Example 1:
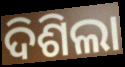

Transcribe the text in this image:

ଦିଶିଲା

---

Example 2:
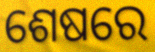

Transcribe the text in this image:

ଶେଷରେ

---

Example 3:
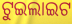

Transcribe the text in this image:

ଟୁଇଲାଇଟ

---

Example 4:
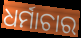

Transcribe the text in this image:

ଧର୍ମାଚାର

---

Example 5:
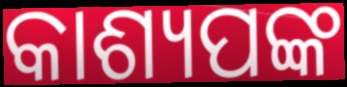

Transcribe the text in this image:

କାଶ୍ୟପଙ୍କ